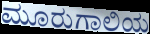
ಮೂರುಗಾಲಿಯ